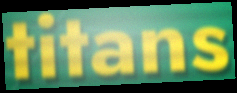
titans